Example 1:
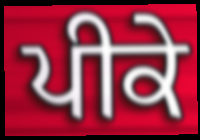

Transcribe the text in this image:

ਪੀਕੇ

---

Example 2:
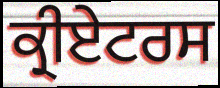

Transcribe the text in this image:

ਕ੍ਰੀਏਟਰਸ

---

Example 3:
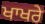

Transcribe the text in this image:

ਖਾਖਰੇ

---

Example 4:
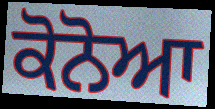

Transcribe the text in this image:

ਕੋਨੋਆ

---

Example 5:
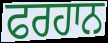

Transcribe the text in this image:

ਫਰਹਾਨ